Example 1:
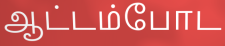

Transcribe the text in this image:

ஆட்டம்போட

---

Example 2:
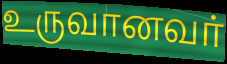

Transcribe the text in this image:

உருவானவர்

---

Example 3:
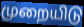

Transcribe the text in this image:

முறையிடு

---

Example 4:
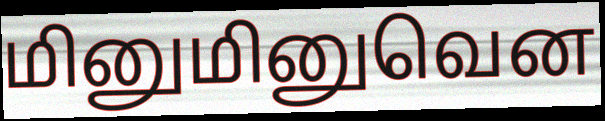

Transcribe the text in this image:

மினுமினுவென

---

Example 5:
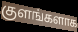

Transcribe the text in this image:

குளங்களாக